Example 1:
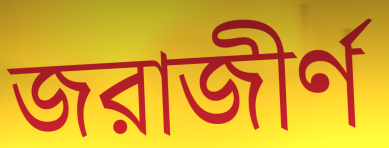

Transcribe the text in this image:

জরাজীর্ণ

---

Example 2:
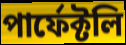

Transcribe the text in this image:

পার্ফেক্টলি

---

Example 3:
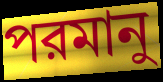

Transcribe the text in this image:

পরমানু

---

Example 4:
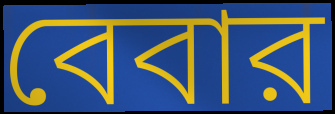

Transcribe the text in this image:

বেবার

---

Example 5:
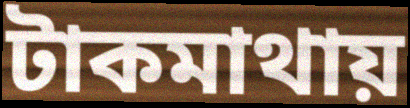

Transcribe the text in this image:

টাকমাথায়